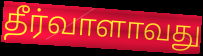
தீர்வாளாவது